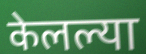
केलल्या